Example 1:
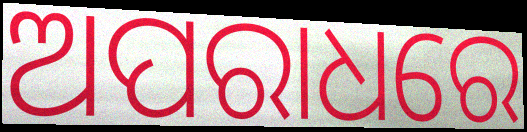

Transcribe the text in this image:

ଅପରାଧରେ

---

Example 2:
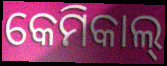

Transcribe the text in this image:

କେମିକାଲ୍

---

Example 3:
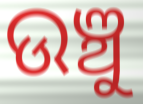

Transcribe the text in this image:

ଉଞ୍ଚୁ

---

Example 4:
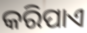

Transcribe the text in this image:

କରିପାଏ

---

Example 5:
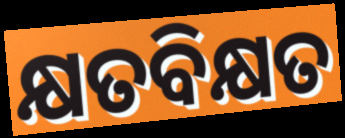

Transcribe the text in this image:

କ୍ଷତବିକ୍ଷତ